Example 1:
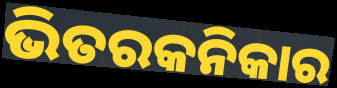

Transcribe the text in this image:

ଭିତରକନିକାର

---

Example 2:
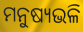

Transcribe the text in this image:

ମନୁଷ୍ୟଭଳି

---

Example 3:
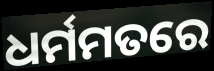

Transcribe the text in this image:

ଧର୍ମମତରେ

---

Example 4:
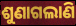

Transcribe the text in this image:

ଶୁଣାଗଲାଣି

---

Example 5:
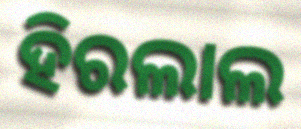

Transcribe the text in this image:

ହିରଲାଲ